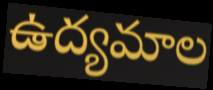
ఉద్యమాల